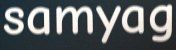
samyag